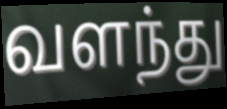
வளந்து